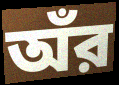
অঁর